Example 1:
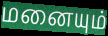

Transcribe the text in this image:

மனையும்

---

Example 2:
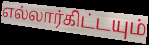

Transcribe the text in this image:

எல்லார்கிட்டயும்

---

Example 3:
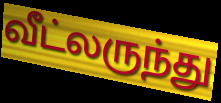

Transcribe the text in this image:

வீட்லருந்து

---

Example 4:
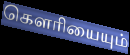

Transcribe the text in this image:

கௌரியையும்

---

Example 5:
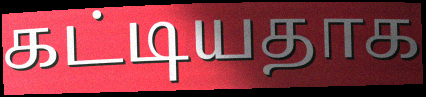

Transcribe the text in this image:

கட்டியதாக